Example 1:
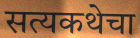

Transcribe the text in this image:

सत्यकथेचा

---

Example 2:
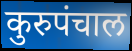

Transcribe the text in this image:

कुरुपंचाल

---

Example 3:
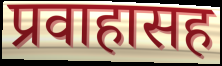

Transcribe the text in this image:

प्रवाहासह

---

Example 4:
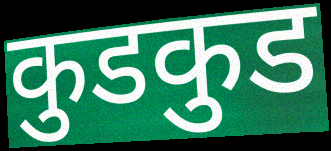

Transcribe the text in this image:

कुडकुड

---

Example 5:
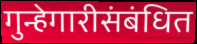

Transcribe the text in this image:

गुन्हेगारीसंबंधित